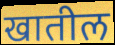
खातील